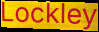
Lockley